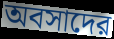
অবসাদের